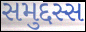
સમુદ્દસ્સ